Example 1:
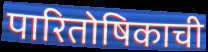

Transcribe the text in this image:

पारितोषिकाची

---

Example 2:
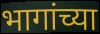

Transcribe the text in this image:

भागांच्या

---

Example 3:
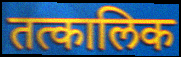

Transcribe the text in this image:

तत्कालिक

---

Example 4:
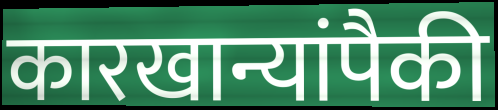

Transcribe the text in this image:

कारखान्यांपैकी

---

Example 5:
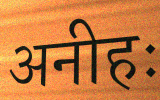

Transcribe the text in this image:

अनीहः